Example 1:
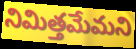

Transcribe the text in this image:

నిమిత్తమేమని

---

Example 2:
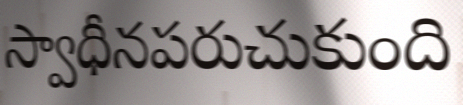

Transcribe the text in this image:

స్వాధీనపరుచుకుంది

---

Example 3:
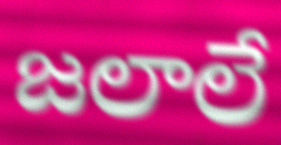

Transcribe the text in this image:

జలాలే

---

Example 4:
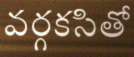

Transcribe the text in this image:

వర్గకసితో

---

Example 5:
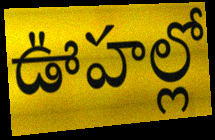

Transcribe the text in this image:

ఊహల్లో